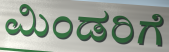
ಮಿಂಡರಿಗೆ